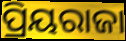
ପ୍ରିୟରାଜା